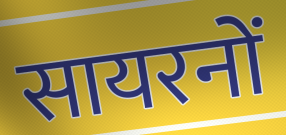
सायरनों